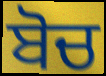
ਬੋਚ